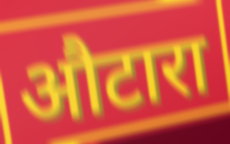
औटारा